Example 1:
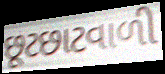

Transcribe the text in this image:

છૂટછાટવાળી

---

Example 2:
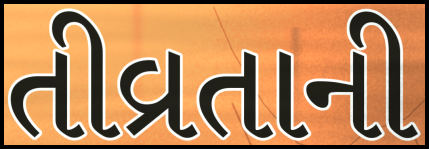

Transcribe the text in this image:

તીવ્રતાની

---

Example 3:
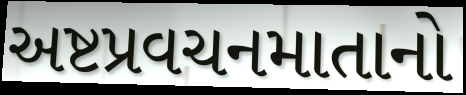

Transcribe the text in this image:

અષ્ટપ્રવચનમાતાનો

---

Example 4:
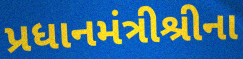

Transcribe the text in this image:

પ્રધાનમંત્રીશ્રીના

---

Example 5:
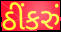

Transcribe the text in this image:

ઠીંકરું